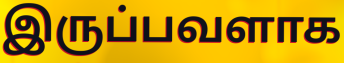
இருப்பவளாக